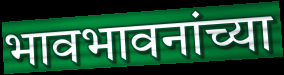
भावभावनांच्या